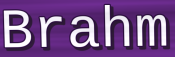
Brahm